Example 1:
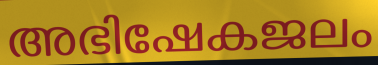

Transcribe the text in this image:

അഭിഷേകജലം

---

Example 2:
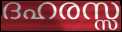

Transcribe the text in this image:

ദഹരസ്സ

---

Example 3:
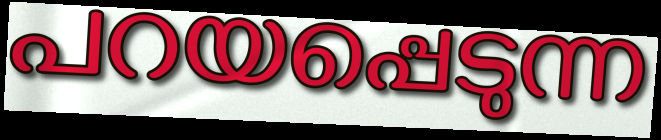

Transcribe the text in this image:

പറയപ്പെടുന്ന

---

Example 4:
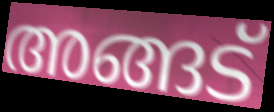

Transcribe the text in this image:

അങ്ങട്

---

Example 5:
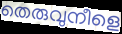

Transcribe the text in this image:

തെരുവുനീളെ